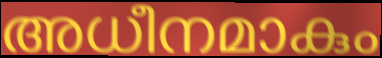
അധീനമാകും